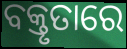
ବକ୍ତୃତାରେ